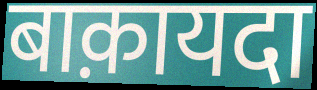
बाक़ायदा